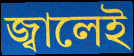
জ্বালেই